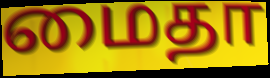
மைதா